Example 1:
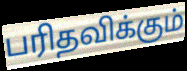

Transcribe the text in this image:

பரிதவிக்கும்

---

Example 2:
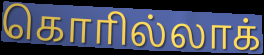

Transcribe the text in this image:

கொரில்லாக்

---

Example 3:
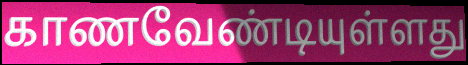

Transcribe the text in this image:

காணவேண்டியுள்ளது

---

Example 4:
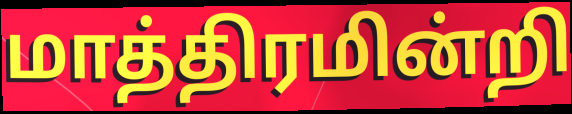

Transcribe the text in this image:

மாத்திரமின்றி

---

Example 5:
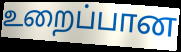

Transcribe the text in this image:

உறைப்பான